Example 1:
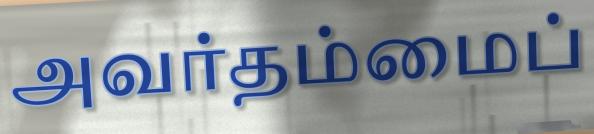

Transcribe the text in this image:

அவர்தம்மைப்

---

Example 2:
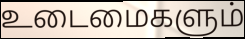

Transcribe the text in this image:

உடைமைகளும்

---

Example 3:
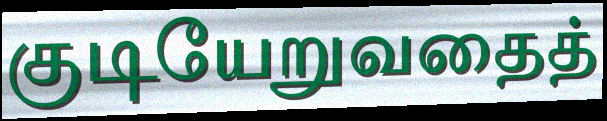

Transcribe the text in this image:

குடியேறுவதைத்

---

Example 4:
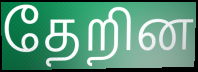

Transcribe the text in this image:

தேறின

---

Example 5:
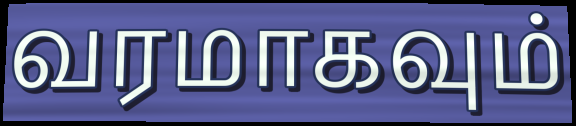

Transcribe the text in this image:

வரமாகவும்